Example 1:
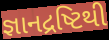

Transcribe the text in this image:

જ્ઞાનદ્રષ્ટિથી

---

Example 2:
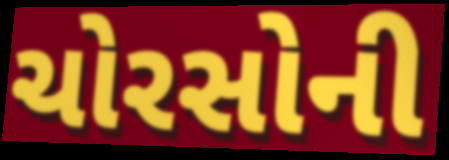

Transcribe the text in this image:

ચોરસોની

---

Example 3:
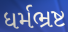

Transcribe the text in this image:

ધર્મભ્રષ્ટ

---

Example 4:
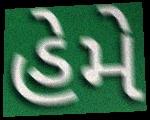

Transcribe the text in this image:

હેમે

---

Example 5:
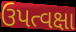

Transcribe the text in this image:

ઉપત્વક્ષા